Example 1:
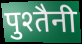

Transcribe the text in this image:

पुश्तैनी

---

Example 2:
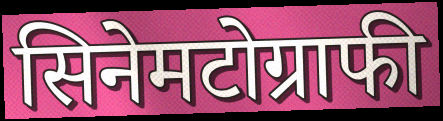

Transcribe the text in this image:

सिनेमटोग्राफी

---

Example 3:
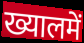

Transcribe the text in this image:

ख्यालमें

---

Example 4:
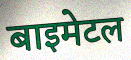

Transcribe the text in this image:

बाइमेटल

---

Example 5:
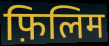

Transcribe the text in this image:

फ़िलिम